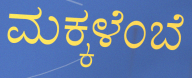
ಮಕ್ಕಳೆಂಬೆ